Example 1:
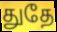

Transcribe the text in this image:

துதே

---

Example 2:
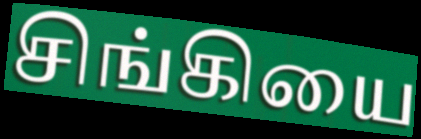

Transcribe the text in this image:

சிங்கியை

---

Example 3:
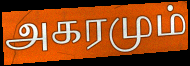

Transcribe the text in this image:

அகரமும்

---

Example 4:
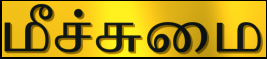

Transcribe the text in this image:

மீச்சுமை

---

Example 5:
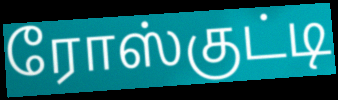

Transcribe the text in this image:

ரோஸ்குட்டி